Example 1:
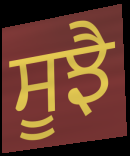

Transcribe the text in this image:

ਸੂਝੈ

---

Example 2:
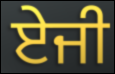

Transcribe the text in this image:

ਏਜੀ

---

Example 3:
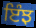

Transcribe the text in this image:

ਇੰਝ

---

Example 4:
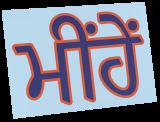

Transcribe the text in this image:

ਮੀਂਹੇਂ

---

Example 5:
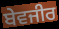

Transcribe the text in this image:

ਬੇਵਜੀਰ